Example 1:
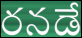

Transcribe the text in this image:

రనడే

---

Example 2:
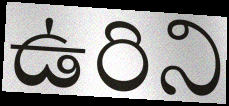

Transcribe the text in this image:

ఉరిని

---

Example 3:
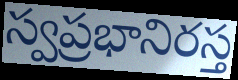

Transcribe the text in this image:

స్వప్రభానిరస్త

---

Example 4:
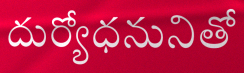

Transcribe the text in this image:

దుర్యోధనునితో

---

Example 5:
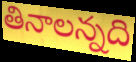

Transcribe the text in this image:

తినాలన్నది